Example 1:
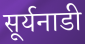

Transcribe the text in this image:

सूर्यनाडी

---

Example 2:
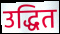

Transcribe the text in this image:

उद्धित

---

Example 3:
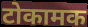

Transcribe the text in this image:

टोकामक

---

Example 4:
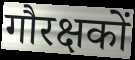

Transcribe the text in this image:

गौरक्षकों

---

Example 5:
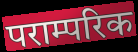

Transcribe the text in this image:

पराम्परिक